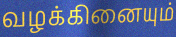
வழக்கினையும்